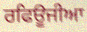
ਰਫਿਊਜੀਆ